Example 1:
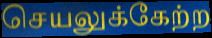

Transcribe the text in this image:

செயலுக்கேற்ற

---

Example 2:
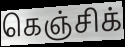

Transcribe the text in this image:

கெஞ்சிக்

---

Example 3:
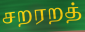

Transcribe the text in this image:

சறரறத்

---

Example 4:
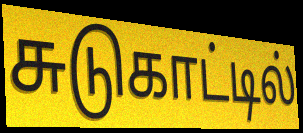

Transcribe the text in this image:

சுடுகாட்டில்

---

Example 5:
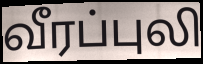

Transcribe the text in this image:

வீரப்புலி